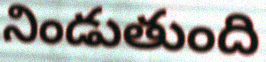
నిండుతుంది